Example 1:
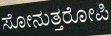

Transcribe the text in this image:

ಸೋನುತ್ತರೋಪಿ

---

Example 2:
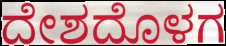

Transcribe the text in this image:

ದೇಶದೊಳಗ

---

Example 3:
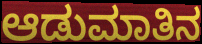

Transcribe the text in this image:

ಆಡುಮಾತಿನ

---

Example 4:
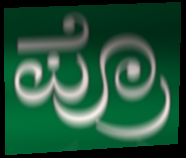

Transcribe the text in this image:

ಪ್ರೊ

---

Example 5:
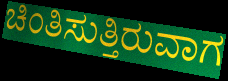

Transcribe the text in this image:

ಚಿಂತಿಸುತ್ತಿರುವಾಗ